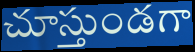
చూస్తుండగా